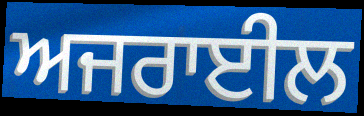
ਅਜਰਾਈਲ